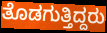
ತೊಡಗುತ್ತಿದ್ದರು